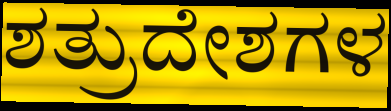
ಶತ್ರುದೇಶಗಳ